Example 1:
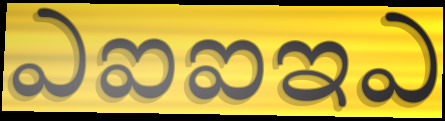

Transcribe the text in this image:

ఎఐఐఇఎ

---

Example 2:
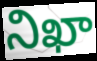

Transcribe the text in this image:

నిఖా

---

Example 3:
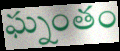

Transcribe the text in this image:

ఘ్నంతం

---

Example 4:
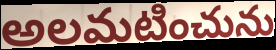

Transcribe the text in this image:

అలమటించును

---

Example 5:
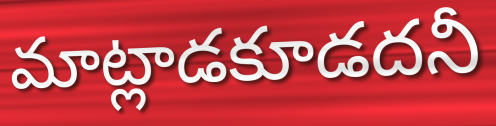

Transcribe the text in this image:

మాట్లాడకూడదనీ